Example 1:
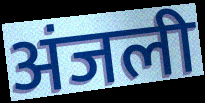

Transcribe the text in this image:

अंजली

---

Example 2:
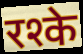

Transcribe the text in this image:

रश्के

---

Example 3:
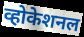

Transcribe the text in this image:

व्होकेशनल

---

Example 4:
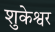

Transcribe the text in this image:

शुकेश्वर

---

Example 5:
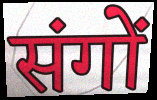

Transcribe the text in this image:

संगों